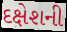
દક્ષેશની